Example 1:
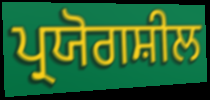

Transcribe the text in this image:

ਪ੍ਰਯੋਗਸ਼ੀਲ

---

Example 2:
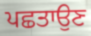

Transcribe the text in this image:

ਪਛਤਾਉਣ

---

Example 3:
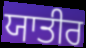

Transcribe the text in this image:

ਯਾਤੀਰ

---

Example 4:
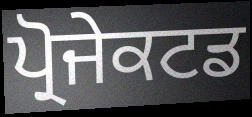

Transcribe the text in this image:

ਪ੍ਰੋਜੇਕਟਡ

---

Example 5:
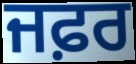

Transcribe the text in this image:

ਜਫ਼ਰ